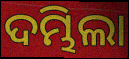
ଦମ୍ଭିଲା